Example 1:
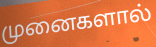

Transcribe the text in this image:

முனைகளால்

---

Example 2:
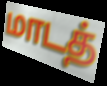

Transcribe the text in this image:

மாடத்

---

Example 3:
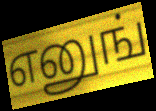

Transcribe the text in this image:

எனுங்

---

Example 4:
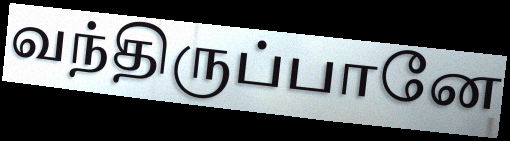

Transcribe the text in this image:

வந்திருப்பானே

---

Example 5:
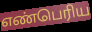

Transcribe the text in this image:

எண்பெரிய